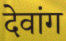
देवांग